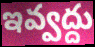
ఇవ్వద్దు